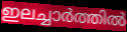
ഇലച്ചാർത്തിൽ